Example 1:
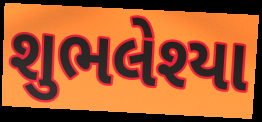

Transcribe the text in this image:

શુભલેશ્યા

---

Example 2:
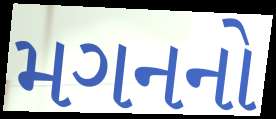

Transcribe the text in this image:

મગનનો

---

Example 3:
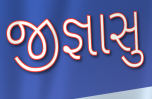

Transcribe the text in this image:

જીજ્ઞાસુ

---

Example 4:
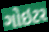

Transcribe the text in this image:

ગોઇટર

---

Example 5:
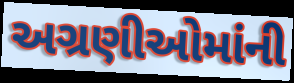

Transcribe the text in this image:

અગ્રણીઓમાંની